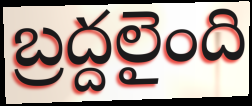
బ్రద్దలైంది